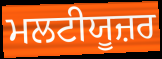
ਮਲਟੀਯੂਜ਼ਰ